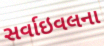
સર્વાઇવલના